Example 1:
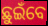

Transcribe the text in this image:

ଛୁଇଁବେ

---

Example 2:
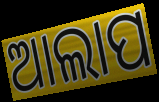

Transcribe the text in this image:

ଆଲାପ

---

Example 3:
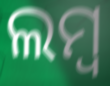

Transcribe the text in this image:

ଲମ୍ବ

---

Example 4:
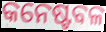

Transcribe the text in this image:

କନେଷ୍ଟବଳ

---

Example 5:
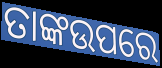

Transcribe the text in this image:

ତାଙ୍କଉପରେ